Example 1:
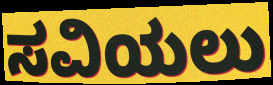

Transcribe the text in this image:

ಸವಿಯಲು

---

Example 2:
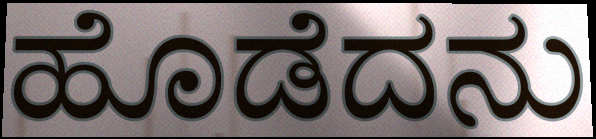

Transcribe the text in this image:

ಹೊಡೆದನು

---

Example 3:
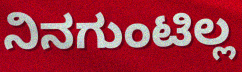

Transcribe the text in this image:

ನಿನಗುಂಟಿಲ್ಲ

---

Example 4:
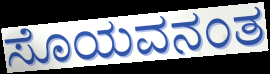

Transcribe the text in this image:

ಸೊಯವನಂತ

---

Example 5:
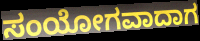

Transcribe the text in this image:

ಸಂಯೋಗವಾದಾಗ